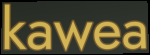
kawea